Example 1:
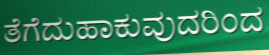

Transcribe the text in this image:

ತೆಗೆದುಹಾಕುವುದರಿಂದ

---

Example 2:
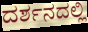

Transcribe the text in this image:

ದರ್ಶನದಲ್ಲಿ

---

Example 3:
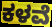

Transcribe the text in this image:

ಕಳವೆ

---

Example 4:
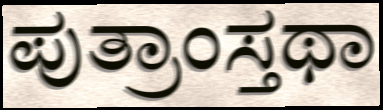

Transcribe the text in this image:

ಪುತ್ರಾಂಸ್ತಥಾ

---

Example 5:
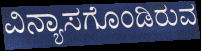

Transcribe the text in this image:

ವಿನ್ಯಾಸಗೊಂಡಿರುವ